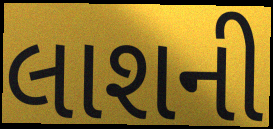
લાશની